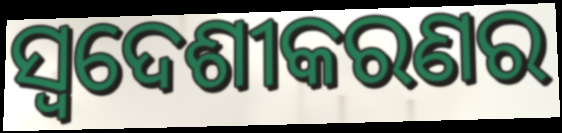
ସ୍ୱଦେଶୀକରଣର